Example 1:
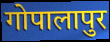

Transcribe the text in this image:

गोपालापुर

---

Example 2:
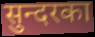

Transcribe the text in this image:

सुन्दरका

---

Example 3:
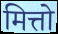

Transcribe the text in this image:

मित्तो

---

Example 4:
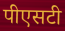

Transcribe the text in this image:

पीएसटी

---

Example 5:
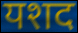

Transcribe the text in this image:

यशद